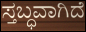
ಸ್ತಬ್ಧವಾಗಿದೆ